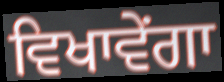
ਵਿਖਾਵੇਂਗਾ